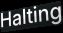
Halting